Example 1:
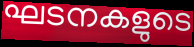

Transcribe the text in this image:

ഘടനകളുടെ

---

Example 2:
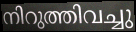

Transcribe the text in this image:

നിറുത്തിവച്ചു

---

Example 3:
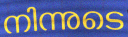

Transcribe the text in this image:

നിന്നുടെ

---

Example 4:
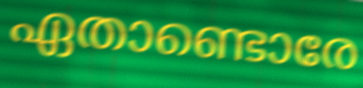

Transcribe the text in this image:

ഏതാണ്ടൊരേ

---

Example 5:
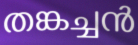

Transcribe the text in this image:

തങ്കച്ചൻ